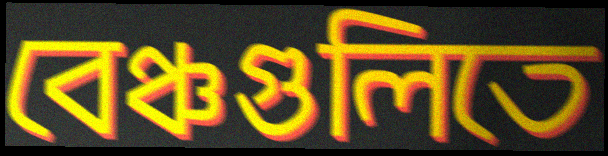
বেঞ্চগুলিতে